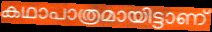
കഥാപാത്രമായിട്ടാണ്